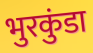
भुरकुंडा